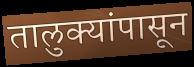
तालुक्यांपासून